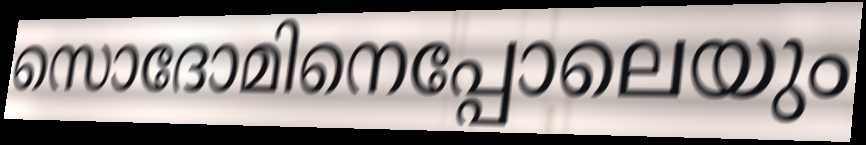
സൊദോമിനെപ്പോലെയും